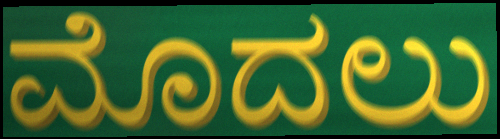
ಮೊದಲು